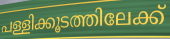
പള്ളിക്കൂടത്തിലേക്ക്